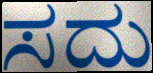
ಸದು